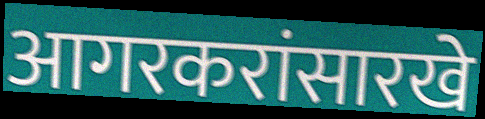
आगरकरांसारखे